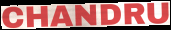
CHANDRU